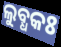
ଲୁବ୍ଧକଃ